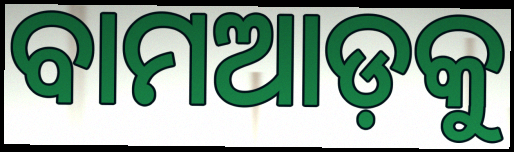
ବାମଆଡ଼କୁ